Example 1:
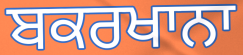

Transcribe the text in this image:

ਬਕਰਖਾਨਾ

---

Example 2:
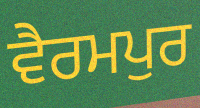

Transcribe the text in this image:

ਵੈਰਮਪੁਰ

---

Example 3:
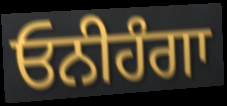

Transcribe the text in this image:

ਓਨੀਹੰਗਾ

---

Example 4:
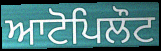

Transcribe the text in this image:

ਆਟੋਪਿਲੌਟ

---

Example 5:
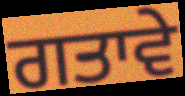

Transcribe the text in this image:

ਗਤਾਵੇ